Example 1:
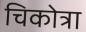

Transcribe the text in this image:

चिकोत्रा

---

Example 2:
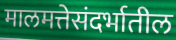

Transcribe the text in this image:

मालमत्तेसंदर्भातील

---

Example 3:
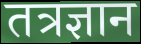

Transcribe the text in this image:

तत्रज्ञान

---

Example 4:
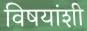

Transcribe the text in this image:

विषयांशी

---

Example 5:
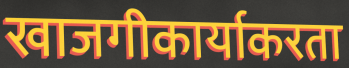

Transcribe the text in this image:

खाजगीकार्याकरता